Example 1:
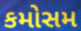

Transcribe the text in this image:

કમોસમ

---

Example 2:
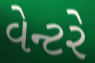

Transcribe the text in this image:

વેન્ટરે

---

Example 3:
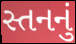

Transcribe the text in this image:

સ્તનનું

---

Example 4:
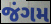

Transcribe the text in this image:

જંગમ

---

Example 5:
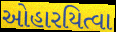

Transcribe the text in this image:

ઓહારયિત્વા